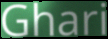
Ghari